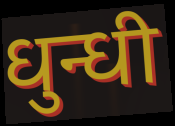
धुन्धी